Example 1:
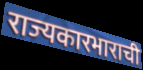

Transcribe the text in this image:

राज्यकारभाराची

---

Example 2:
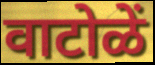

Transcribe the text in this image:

वाटोळें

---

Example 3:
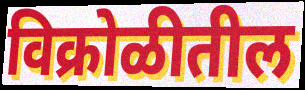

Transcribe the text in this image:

विक्रोळीतील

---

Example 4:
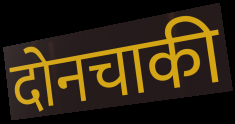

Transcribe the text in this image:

दोनचाकी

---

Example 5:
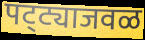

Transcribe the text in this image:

पट्ट्याजवळ